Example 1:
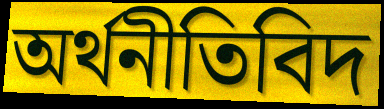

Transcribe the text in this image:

অৰ্থনীতিবিদ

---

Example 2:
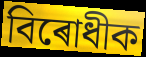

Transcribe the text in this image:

বিৰোধীক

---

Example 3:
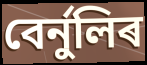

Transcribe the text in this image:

বেৰ্নুলিৰ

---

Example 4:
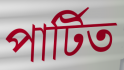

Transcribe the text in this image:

পাৰ্টিত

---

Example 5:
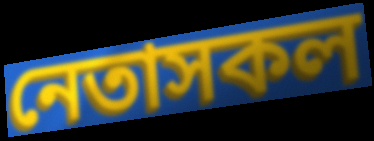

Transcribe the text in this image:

নেতাসকল